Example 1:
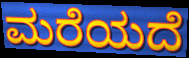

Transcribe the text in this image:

ಮರೆಯದೆ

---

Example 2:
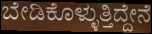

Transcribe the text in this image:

ಬೇಡಿಕೊಳ್ಳುತ್ತಿದ್ದೇನೆ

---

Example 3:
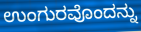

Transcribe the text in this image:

ಉಂಗುರವೊಂದನ್ನು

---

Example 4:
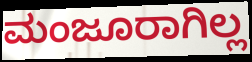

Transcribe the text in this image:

ಮಂಜೂರಾಗಿಲ್ಲ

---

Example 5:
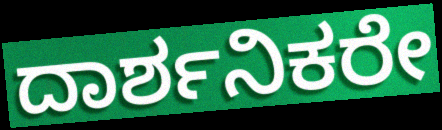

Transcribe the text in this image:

ದಾರ್ಶನಿಕರೇ